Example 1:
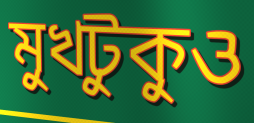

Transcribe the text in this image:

মুখটুকুও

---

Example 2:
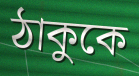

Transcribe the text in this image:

ঠাকুকে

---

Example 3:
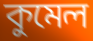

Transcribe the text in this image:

কুমেল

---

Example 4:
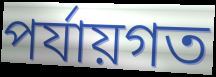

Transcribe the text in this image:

পর্যায়গত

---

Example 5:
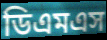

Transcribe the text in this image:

ডিএমএস